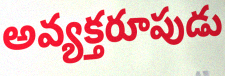
అవ్యక్తరూపుడు